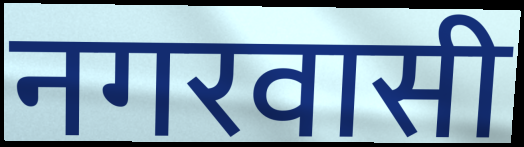
नगरवासी